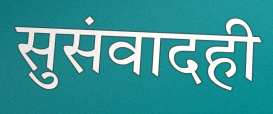
सुसंवादही